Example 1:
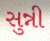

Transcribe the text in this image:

સુન્ની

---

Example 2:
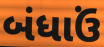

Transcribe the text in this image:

બંધાઉં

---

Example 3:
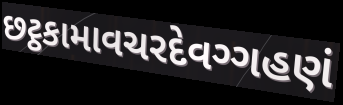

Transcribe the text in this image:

છટ્ઠકામાવચરદેવગ્ગહણં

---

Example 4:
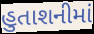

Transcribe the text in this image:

હુતાશનીમાં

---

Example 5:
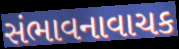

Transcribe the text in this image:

સંભાવનાવાચક